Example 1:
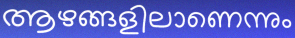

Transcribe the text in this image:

ആഴങ്ങളിലാണെന്നും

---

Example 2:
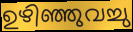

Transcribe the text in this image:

ഉഴിഞ്ഞുവച്ചു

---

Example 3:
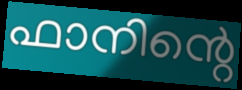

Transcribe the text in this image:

ഫാനിന്റെ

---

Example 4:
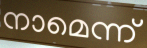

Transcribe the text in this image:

നാമെന്ന്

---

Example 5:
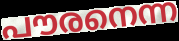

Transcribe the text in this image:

പൗരനെന്ന